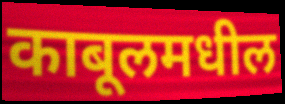
काबूलमधील